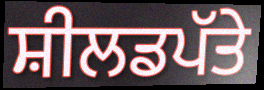
ਸ਼ੀਲਡਪੱਤੇ